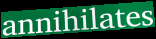
annihilates